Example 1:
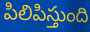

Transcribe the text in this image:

పిలిపిస్తుంది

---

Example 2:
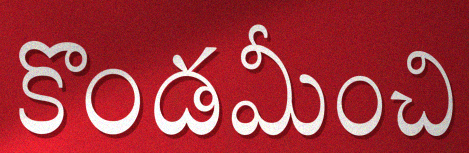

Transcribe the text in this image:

కొండమీంచి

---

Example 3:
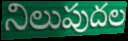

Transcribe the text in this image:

నిలుపుదల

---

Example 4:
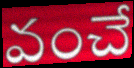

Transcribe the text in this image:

వంచే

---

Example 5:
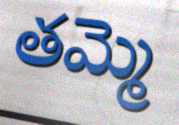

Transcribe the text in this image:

తమ్మె